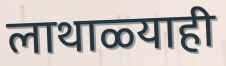
लाथाळ्याही